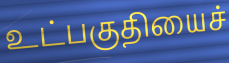
உட்பகுதியைச்